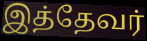
இத்தேவர்